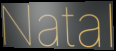
Natal